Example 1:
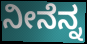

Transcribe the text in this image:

ನೀನೆನ್ನ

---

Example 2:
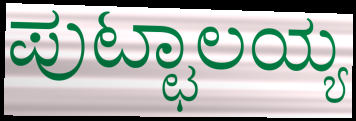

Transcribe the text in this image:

ಪುಟ್ಟಾಲಯ್ಯ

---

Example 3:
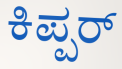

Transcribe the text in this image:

ಕಿಪ್ಪರ್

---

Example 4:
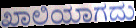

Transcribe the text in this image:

ಖಾಲಿಯಾಗದು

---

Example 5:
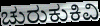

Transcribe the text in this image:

ಚುರುಕುಕಿವಿ